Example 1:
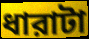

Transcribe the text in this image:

ধারাটা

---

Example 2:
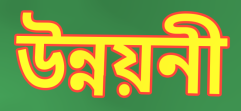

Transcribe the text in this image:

উন্নয়নী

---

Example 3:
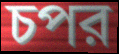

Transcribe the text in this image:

চপর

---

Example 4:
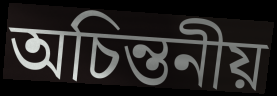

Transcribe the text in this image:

অচিন্তনীয়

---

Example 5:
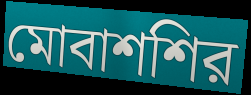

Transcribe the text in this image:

মোবাশশির